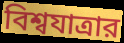
বিশ্বযাত্রার